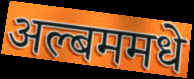
अल्बममधे